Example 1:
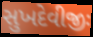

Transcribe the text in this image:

સુખદેવીજીઃ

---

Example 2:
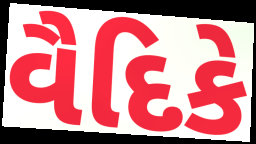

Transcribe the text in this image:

વૈદિકે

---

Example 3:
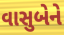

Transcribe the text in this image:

વાસુબેને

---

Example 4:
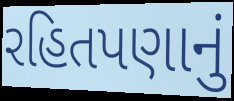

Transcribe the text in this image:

રહિતપણાનું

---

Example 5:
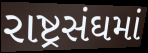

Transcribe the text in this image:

રાષ્ટ્રસંઘમાં